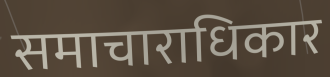
समाचाराधिकार